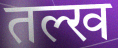
तल्‍ख